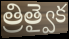
త్రిత్వైక